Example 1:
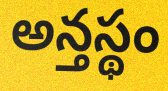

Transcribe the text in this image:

అన్తస్థం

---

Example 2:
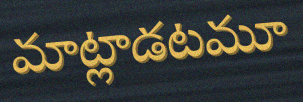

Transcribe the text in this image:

మాట్లాడటమూ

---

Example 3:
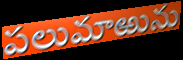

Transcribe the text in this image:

పలుమాఱును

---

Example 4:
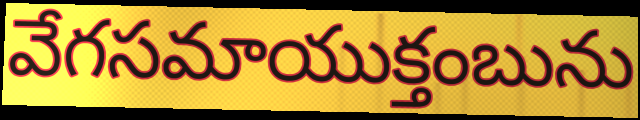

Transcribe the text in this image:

వేగసమాయుక్తంబును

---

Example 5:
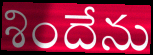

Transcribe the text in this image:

శిందేను